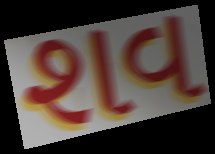
શવ